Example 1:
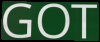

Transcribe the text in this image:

GOT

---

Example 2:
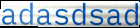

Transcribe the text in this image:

adasdsad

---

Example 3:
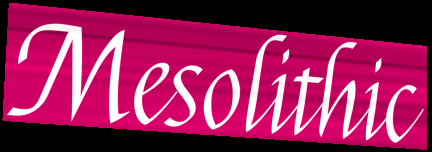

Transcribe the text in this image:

Mesolithic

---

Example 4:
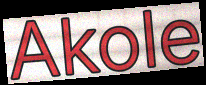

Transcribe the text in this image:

Akole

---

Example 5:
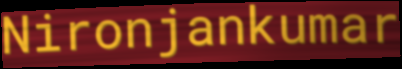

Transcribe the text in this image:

Nironjankumar